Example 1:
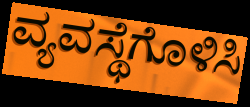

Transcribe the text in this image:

ವ್ಯವಸ್ಥೆಗೊಳಿಸಿ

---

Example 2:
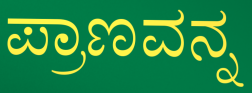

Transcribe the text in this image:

ಪ್ರಾಣವನ್ನ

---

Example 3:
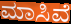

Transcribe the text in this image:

ಮಾಸಿವೆ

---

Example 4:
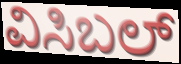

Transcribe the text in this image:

ವಿಸಿಬಲ್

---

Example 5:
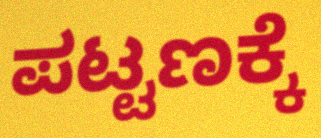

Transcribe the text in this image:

ಪಟ್ಟಣಕ್ಕೆ